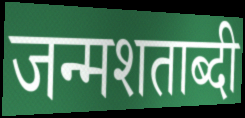
जन्मशताब्दी